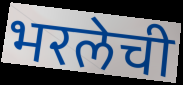
भरलेची